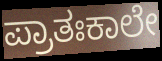
ಪ್ರಾತಃಕಾಲೇ